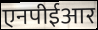
एनपीईआर